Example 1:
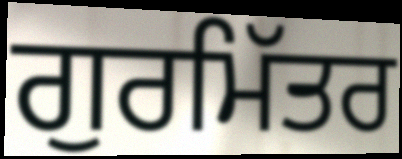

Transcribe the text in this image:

ਗੁਰਮਿੱਤਰ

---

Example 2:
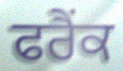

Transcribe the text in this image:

ਫਰੈਂਕ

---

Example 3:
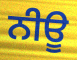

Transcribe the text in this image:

ਨੀਊ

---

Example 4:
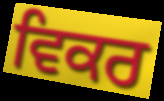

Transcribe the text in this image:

ਵਿਕਰ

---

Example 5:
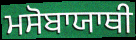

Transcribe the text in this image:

ਮਸੋਬਾਯਾਥੀ